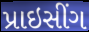
પ્રાઇસીંગ